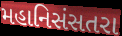
મહાનિસંસતરા